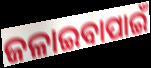
ଜଳାଇବାପାଇଁ